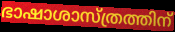
ഭാഷാശാസ്ത്രത്തിന്